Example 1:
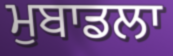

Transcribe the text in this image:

ਮੁਬਾਡਲਾ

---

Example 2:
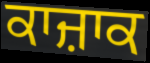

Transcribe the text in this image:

ਕਾਜ਼ਾਕ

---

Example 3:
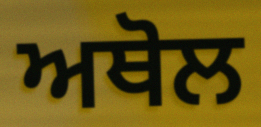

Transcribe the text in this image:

ਅਥੋਲ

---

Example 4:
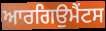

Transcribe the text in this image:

ਆਰਗਿਉਮੈਂਟਸ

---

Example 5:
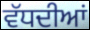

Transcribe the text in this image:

ਵੱਧਦੀਆਂ